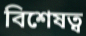
বিশেষত্ব